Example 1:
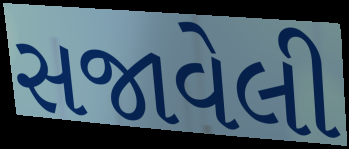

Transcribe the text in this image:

સજાવેલી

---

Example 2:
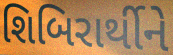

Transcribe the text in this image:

શિબિરાર્થીને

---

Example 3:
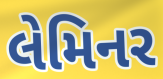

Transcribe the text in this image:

લેમિનર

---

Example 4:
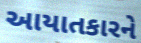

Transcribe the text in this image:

આયાતકારને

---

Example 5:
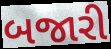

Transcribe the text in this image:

બજારી